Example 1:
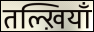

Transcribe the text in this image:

तल्ख़ियाँ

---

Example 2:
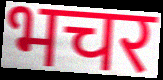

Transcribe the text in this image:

भचर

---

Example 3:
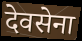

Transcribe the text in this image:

देवसेना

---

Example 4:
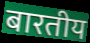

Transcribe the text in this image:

बारतीय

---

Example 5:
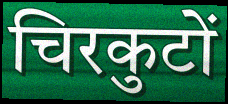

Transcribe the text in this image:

चिरकुटों